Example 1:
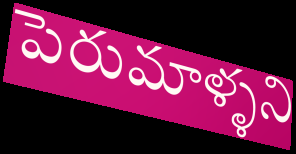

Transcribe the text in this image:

పెరుమాళ్ళని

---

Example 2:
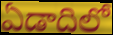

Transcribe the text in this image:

ఏడాదిలో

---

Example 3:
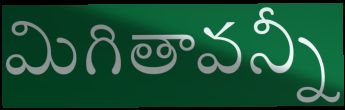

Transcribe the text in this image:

మిగితావన్నీ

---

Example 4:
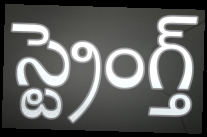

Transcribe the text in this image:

స్ట్రెంగ్త్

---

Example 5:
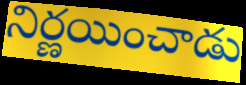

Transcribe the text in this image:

నిర్ణయించాడు